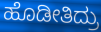
ಹೊಡೀತಿದ್ರು